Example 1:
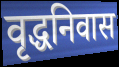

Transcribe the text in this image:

वृद्धनिवास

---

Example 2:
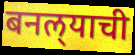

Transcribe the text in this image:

बनल्याची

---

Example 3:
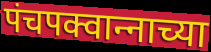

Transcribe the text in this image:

पंचपक्वान्नाच्या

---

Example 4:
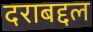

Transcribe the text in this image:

दराबद्दल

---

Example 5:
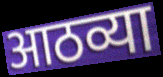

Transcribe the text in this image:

आठव्या